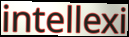
intellexi